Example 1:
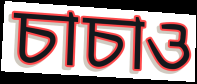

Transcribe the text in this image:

চাচাও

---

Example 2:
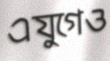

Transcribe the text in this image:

এযুগেও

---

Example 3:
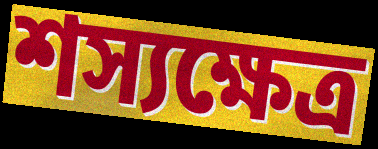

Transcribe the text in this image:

শস্যক্ষেত্র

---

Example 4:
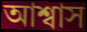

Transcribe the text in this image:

আশ্বাস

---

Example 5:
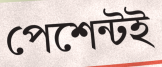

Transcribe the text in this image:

পেশেন্টই